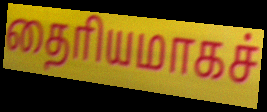
தைரியமாகச்